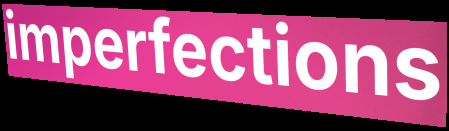
imperfections